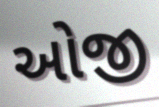
ઓજી